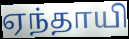
ஏந்தாயி